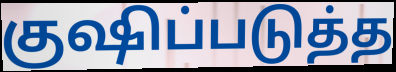
குஷிப்படுத்த